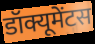
डॉक्यूमेंटस